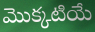
మొక్కటియే